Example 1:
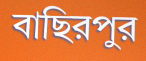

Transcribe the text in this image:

বাছিরপুর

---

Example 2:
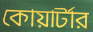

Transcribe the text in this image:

কোয়ার্টার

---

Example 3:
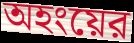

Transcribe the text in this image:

অহংয়ের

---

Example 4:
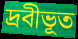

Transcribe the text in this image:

দ্রবীভূত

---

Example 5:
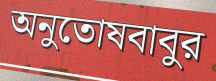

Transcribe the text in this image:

অনুতোষবাবুর